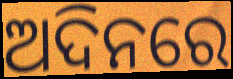
ଅଦିନରେ